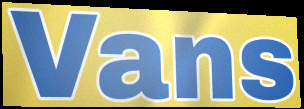
Vans